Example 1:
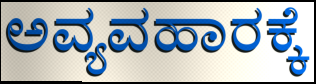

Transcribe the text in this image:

ಅವ್ಯವಹಾರಕ್ಕೆ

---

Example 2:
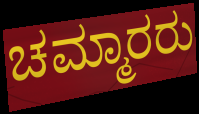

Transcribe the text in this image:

ಚಮ್ಮಾರರು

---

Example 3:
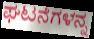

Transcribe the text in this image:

ಘಟನೆಗಳನ್ನ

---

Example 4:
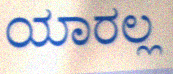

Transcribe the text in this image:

ಯಾರಲ್ಲ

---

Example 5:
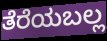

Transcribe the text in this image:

ತೆರೆಯಬಲ್ಲ